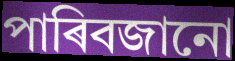
পাৰিবজানো